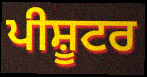
ਪੀਸ਼ੂਟਰ